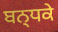
ਬਨ੍ਧਕੇ